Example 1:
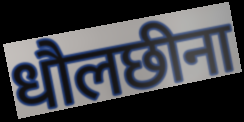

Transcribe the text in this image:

धौलछीना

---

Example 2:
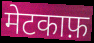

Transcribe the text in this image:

मेटकाफ़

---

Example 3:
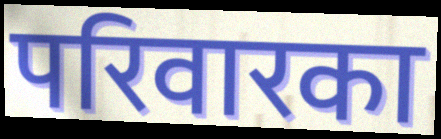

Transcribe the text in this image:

परिवारका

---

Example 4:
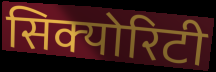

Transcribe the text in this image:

सिक्‍योरिटी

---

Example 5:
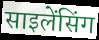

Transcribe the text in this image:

साइलेंसिंग